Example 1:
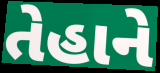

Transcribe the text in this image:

તેહાને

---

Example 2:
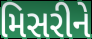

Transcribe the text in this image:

મિસરીને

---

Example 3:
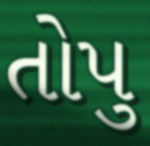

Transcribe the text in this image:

તોપુ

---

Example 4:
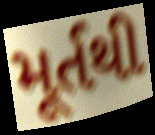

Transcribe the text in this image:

મૂર્તથી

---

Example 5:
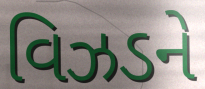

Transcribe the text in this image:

વિઝડને